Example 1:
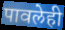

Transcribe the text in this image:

पावलेही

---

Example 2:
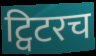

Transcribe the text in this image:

ट्विटरच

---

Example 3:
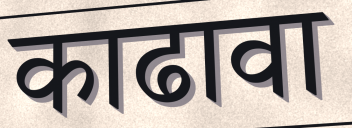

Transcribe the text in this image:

काढावा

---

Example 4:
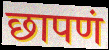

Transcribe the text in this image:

छापणं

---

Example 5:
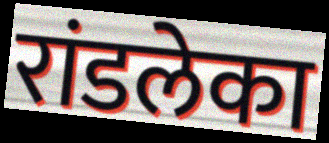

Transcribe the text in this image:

रांडलेका